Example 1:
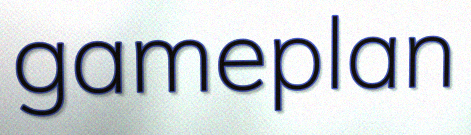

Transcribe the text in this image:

gameplan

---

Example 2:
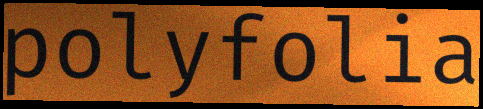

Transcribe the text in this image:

polyfolia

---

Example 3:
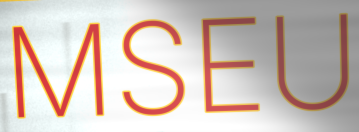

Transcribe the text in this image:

MSEU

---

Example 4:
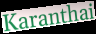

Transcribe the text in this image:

Karanthai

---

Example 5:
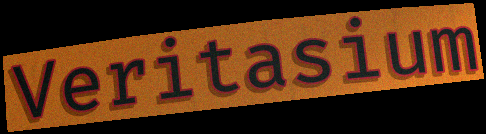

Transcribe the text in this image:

Veritasium